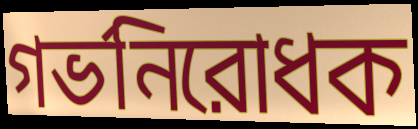
গর্ভনিরোধক